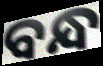
ବନ୍ଧ